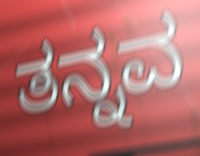
ತನ್ನವ